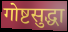
गोष्टसुद्धा